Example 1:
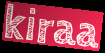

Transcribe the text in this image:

kiraa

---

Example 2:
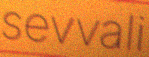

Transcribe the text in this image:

sevvali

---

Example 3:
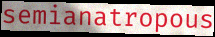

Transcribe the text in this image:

semianatropous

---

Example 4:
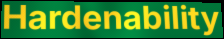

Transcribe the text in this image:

Hardenability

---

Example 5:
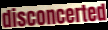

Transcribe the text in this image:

disconcerted